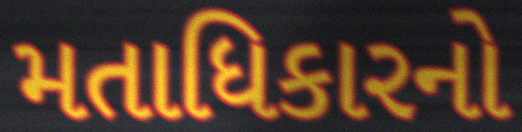
મતાધિકારનો